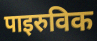
पाइरुविक